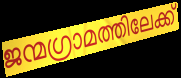
ജന്മഗ്രാമത്തിലേക്ക്